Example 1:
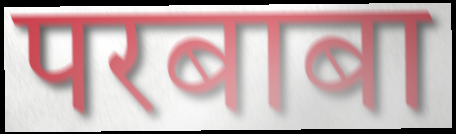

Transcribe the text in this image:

परबाबा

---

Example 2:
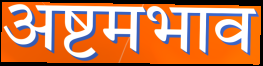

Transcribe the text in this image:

अष्टमभाव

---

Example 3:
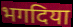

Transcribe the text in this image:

भगदिया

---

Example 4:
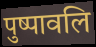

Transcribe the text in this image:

पुष्पावलि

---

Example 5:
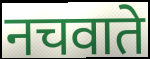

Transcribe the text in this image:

नचवाते